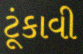
ટૂંકાવી